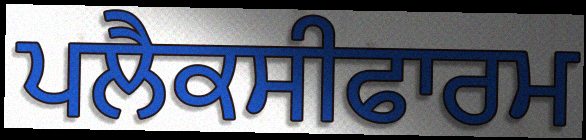
ਪਲੈਕਸੀਫਾਰਮ